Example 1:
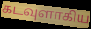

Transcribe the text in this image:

கடவுளாகிய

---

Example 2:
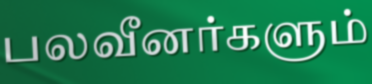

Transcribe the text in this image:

பலவீனர்களும்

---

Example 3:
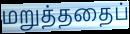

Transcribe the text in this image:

மறுத்ததைப்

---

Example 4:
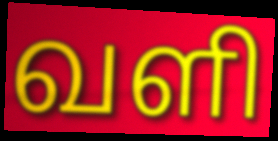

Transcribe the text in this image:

வளி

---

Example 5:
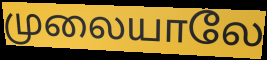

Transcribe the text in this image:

முலையாலே